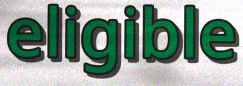
eligible